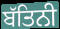
ਬੱਤਿਨੀ